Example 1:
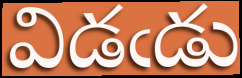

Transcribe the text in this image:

విడఁడు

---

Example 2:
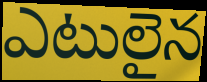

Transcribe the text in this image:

ఎటులైన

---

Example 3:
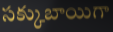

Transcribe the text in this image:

సక్కుబాయిగా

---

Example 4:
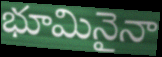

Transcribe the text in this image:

భూమినైనా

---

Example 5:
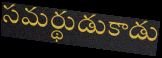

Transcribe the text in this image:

సమర్థుడుకాడు